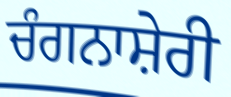
ਚੰਗਨਾਸ਼ੇਰੀ